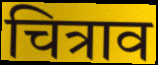
चित्राव